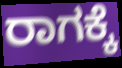
ರಾಗಕ್ಕೆ